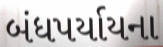
બંધપર્યાયના